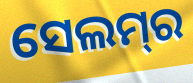
ସେଲମ୍‌ର